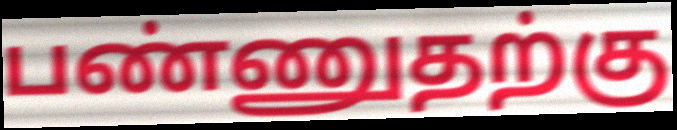
பண்ணுதற்கு